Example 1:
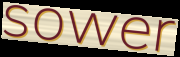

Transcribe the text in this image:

sower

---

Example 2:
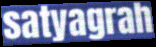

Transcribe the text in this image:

satyagrah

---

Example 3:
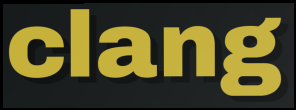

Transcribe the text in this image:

clang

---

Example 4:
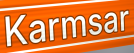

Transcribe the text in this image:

Karmsar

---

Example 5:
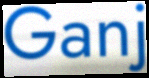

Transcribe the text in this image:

Ganj